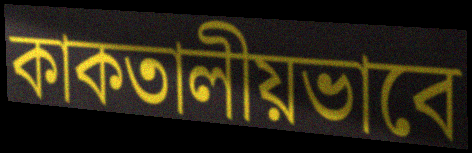
কাকতালীয়ভাবে